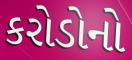
કરોડોનો